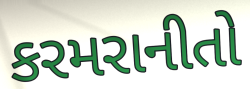
કરમરાનીતો